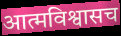
आत्मविश्वासच